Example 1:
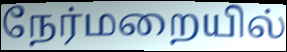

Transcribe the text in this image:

நேர்மறையில்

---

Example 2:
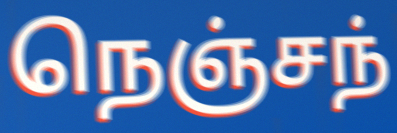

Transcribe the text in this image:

நெஞ்சந்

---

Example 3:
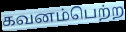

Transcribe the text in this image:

கவனம்பெற்ற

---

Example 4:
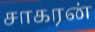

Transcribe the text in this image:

சாகரன்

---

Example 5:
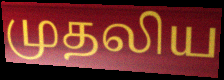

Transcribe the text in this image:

முதலிய